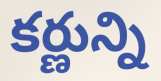
కర్ణున్ని